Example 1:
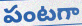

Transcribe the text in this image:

పంటగా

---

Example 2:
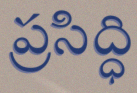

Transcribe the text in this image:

ప్రసిద్ధి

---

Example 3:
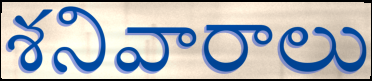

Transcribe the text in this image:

శనివారాలు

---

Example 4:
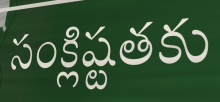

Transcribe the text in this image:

సంక్లిష్టతకు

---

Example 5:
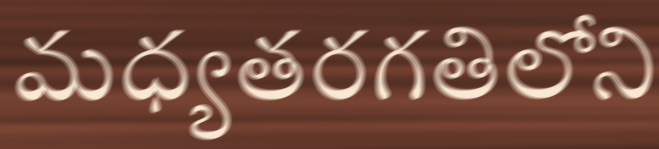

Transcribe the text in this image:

మధ్యతరగతిలోని